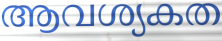
ആവശ്യകത